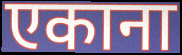
एकाना